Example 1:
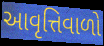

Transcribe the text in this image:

આવૃત્તિવાળો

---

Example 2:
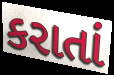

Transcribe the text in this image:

કરાતાં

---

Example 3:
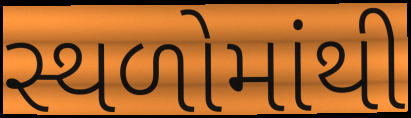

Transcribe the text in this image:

સ્થળોમાંથી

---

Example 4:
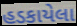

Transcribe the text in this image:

હડકાયેલા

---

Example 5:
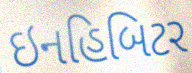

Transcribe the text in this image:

ઇનહિબિટર